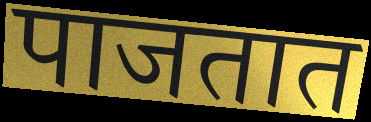
पाजतात